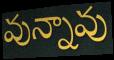
వున్నావు